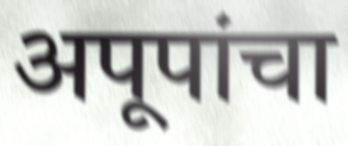
अपूपांचा